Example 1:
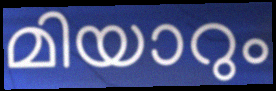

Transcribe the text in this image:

മിയാറും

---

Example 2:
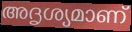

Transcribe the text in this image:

അദൃശ്യമാണ്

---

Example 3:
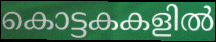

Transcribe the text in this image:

കൊട്ടകകളിൽ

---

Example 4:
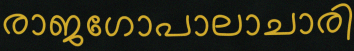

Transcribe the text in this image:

രാജഗോപാലാചാരി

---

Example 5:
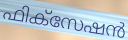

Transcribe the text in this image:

ഫിക്സേഷൻ